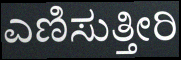
ಎಣಿಸುತ್ತೀರಿ